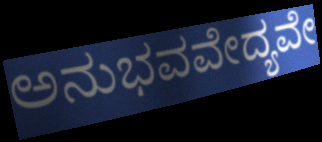
ಅನುಭವವೇದ್ಯವೇ